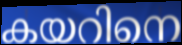
കയറിനെ